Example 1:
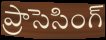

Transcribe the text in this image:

ప్రాసెసింగ్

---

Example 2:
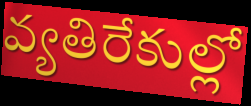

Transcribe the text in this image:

వ్యతిరేకుల్లో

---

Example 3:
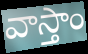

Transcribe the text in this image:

వాస్తాం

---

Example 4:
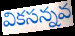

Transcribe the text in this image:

వికసన్నవ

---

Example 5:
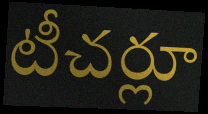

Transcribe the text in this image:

టీచర్లూ